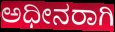
ಅಧೀನರಾಗಿ